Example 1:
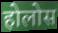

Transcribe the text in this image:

होलोस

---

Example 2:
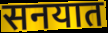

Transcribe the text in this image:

सनयात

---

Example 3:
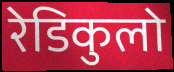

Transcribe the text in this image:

रेडिकुलो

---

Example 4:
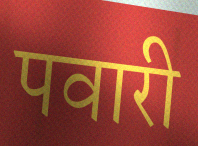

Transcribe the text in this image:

पवारी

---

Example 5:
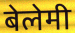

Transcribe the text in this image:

बेलेमी